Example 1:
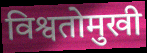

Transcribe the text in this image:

विश्वतोमुखी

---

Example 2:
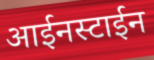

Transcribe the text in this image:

आईनस्टाईन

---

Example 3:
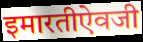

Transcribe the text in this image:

इमारतीऐवजी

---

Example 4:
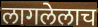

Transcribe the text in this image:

लागलेलाच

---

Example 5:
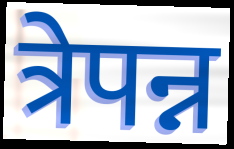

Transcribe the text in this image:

त्रेपन्न